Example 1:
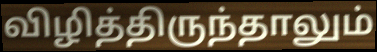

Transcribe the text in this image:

விழித்திருந்தாலும்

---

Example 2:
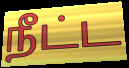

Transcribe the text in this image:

நீட்ட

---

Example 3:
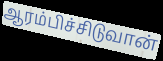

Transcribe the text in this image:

ஆரம்பிச்சிடுவான்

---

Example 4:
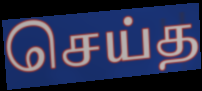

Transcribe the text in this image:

செய்த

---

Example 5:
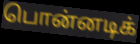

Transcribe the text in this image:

பொன்னடிக்